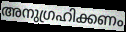
അനുഗ്രഹിക്കണം